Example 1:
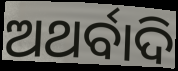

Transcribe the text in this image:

ଅଥର୍ବାଦି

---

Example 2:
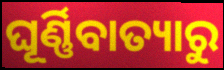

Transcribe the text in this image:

ଘୂର୍ଣ୍ଣିବାତ୍ୟାରୁ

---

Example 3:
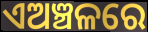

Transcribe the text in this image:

ଏଅଞ୍ଚଳରେ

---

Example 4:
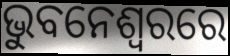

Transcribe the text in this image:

ଭୁବନେଶ୍ବରରେ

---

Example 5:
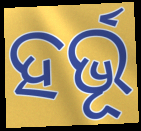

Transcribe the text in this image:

ହର୍ଭୂ